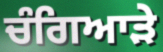
ਚੰਗਿਆੜੇ